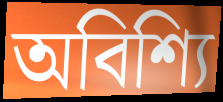
অবিশ্যি